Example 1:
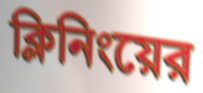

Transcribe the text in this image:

ক্লিনিংয়ের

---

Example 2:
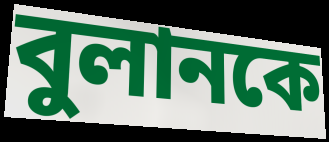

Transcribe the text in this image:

বুলানকে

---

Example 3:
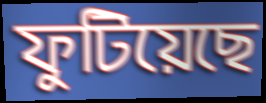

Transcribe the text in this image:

ফুটিয়েছে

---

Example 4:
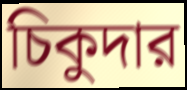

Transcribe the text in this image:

চিকুদার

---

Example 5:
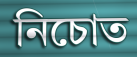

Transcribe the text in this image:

নিচোত